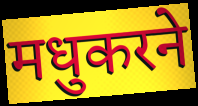
मधुकरने